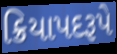
ક્રિયાપદરૂપે